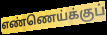
எண்ணெய்க்குப்